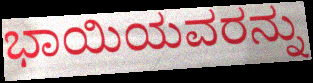
ಭಾಯಿಯವರನ್ನು